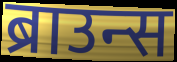
ब्राउन्स